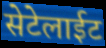
सेटेलाईट